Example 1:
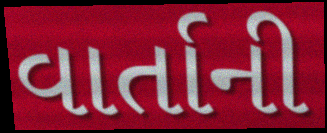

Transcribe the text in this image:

વાર્તાની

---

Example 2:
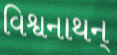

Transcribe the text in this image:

વિશ્વનાથન્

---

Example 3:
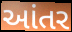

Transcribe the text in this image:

આંતર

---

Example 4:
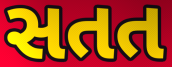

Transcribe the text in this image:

સતત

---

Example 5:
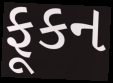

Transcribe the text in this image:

ફૂકન